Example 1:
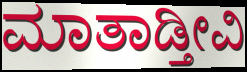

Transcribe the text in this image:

ಮಾತಾಡ್ತೀವಿ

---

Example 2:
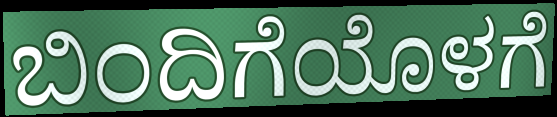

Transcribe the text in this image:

ಬಿಂದಿಗೆಯೊಳಗೆ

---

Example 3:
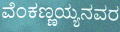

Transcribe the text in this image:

ವೆಂಕಣ್ಣಯ್ಯನವರ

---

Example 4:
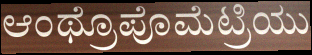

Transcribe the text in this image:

ಆಂಥ್ರೊಪೊಮೆಟ್ರಿಯು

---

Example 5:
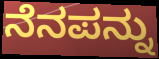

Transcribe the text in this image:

ನೆನಪನ್ನು